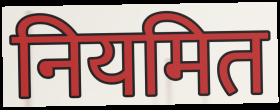
नियमित